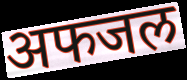
अफजल